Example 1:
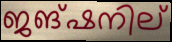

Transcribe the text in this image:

ജങ്ഷനില്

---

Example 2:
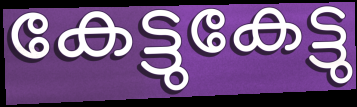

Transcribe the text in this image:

കേട്ടുകേട്ടു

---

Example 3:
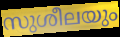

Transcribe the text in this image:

സുശീലയും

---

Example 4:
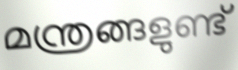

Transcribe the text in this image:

മന്ത്രങ്ങളുണ്ട്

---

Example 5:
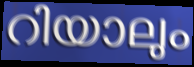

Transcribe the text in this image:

റിയാലും